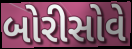
બોરીસોવે